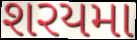
શરયમા